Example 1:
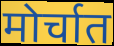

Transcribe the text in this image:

मोर्चात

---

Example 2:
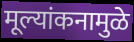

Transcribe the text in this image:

मूल्यांकनामुळे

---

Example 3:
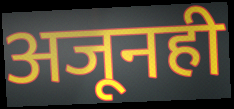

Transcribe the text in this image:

अजूनही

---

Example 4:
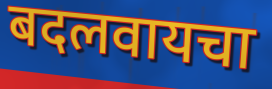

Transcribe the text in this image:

बदलवायचा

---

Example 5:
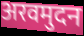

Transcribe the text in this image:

अरवमुदन